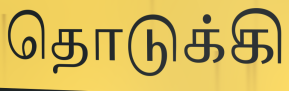
தொடுக்கி